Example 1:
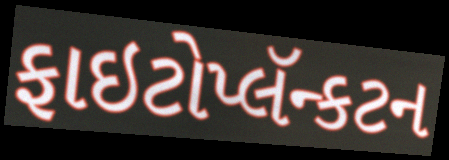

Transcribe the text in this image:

ફાઇટોપ્લૅન્કટન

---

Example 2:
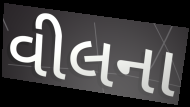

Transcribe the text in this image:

વીલના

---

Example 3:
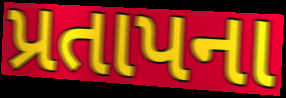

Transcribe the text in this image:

પ્રતાપના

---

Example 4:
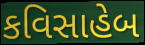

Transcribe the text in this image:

કવિસાહેબ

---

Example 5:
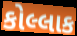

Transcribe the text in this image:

કોલ્લાક